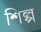
শিল্প